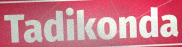
Tadikonda